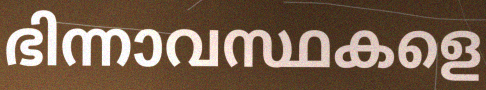
ഭിന്നാവസ്ഥകളെ